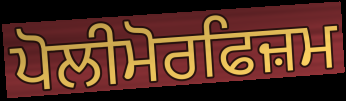
ਪੋਲੀਮੋਰਫਿਜ਼ਮ